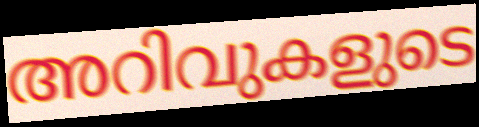
അറിവുകളുടെ